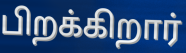
பிறக்கிறார்